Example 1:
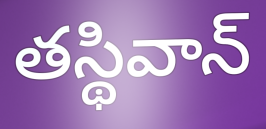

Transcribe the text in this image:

తస్థివాన్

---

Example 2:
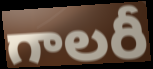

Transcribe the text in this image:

గాలరీ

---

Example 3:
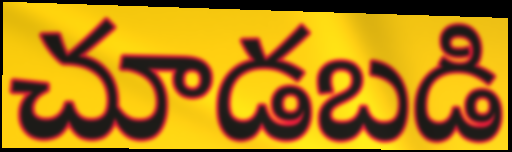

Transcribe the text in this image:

చూడబడి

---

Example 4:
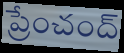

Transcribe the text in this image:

ప్రేంచంద్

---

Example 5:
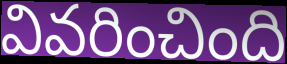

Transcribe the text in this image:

వివరించింది